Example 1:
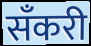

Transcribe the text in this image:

सँकरी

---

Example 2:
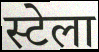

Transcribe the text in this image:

स्टेला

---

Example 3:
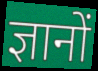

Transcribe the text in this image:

ज्ञानों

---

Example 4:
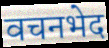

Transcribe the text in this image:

वचनभेद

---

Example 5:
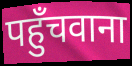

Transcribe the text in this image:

पहुँचवाना